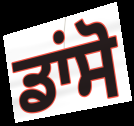
ਡਾਂਸੋ